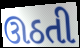
ઊઠતી